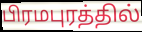
பிரமபுரத்தில்